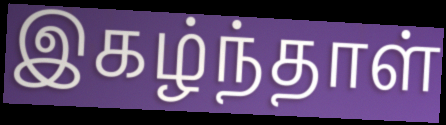
இகழ்ந்தாள்